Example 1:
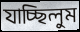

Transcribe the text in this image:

যাচ্ছিলুম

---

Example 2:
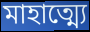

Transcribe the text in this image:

মাহাত্ম্যে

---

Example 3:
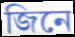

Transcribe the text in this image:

জিনে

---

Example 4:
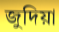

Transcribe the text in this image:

জুদিয়া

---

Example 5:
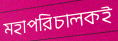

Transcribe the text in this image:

মহাপরিচালকই